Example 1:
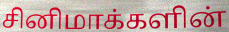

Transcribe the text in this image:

சினிமாக்களின்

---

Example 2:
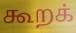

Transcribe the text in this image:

கூறக்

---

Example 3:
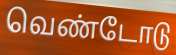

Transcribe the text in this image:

வெண்டோடு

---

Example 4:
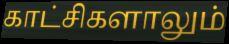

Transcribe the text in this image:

காட்சிகளாலும்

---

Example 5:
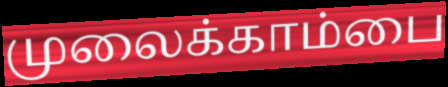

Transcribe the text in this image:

முலைக்காம்பை